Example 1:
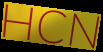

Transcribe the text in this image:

HCN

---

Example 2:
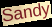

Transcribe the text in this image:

Sandy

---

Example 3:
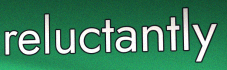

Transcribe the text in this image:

reluctantly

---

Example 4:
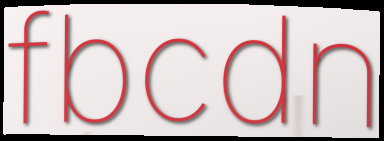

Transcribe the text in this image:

fbcdn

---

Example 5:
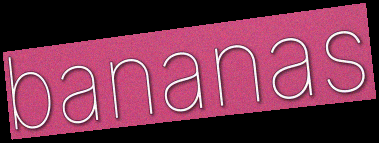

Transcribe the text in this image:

bananas